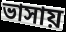
ভাসায়